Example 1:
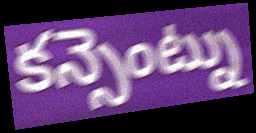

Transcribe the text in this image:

కన్సెంట్ను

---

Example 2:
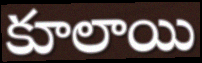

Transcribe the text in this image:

కూలాయి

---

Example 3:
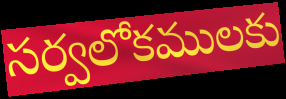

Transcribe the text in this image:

సర్వలోకములకు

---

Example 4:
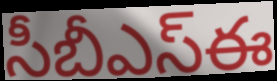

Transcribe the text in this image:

సీబీఎస్ఈ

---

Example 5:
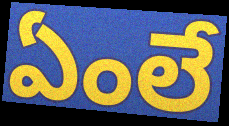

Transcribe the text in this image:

ఏంలే